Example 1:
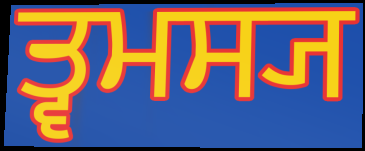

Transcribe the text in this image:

ਤ੍ਵਮਸ੍ਯ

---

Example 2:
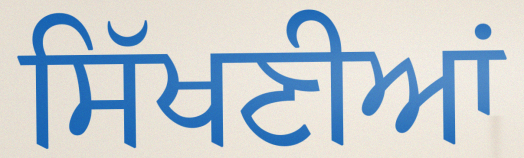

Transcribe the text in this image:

ਸਿੱਖਣੀਆਂ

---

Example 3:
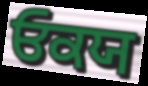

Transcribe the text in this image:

ਓਕਯ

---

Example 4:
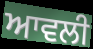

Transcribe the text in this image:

ਆਵਲੀ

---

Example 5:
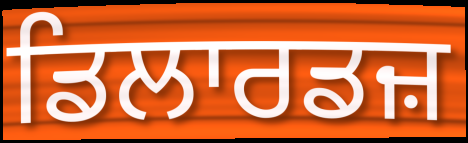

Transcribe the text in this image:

ਡਿਲਾਰਡਜ਼